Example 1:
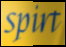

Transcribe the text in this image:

spirt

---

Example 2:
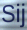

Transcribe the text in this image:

Sij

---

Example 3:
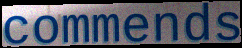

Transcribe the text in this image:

commends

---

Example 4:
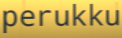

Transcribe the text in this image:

perukku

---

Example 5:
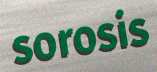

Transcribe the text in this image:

sorosis